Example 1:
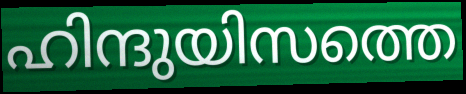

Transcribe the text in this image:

ഹിന്ദുയിസത്തെ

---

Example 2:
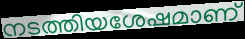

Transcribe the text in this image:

നടത്തിയശേഷമാണ്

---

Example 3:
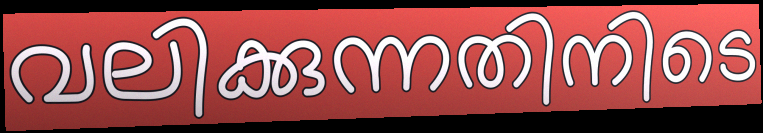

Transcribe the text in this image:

വലിക്കുന്നതിനിടെ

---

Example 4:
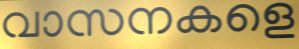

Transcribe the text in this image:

വാസനകളെ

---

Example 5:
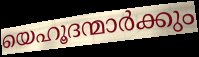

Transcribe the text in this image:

യെഹൂദന്മാർക്കും